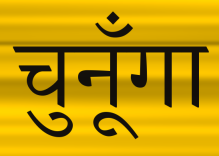
चुनूँगा